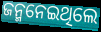
ଜନ୍ମନେଇଥିଲେ